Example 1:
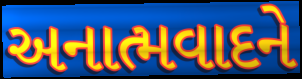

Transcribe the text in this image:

અનાત્મવાદને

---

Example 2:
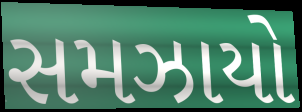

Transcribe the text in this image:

સમઝાયો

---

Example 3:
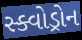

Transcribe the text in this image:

સ્ક્વોડ્રોન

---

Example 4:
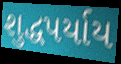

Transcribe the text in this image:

શુદ્ધપર્યાય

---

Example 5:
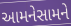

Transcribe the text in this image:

આમનેસામને